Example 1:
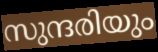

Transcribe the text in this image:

സുന്ദരിയും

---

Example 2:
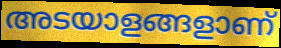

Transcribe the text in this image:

അടയാളങ്ങളാണ്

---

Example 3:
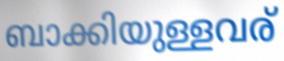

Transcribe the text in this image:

ബാക്കിയുള്ളവര്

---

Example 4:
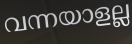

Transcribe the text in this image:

വന്നയാളല്ല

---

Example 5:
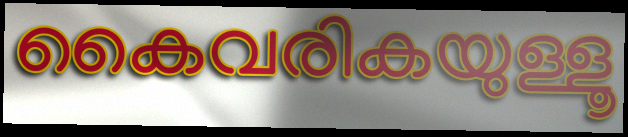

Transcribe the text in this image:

കൈവരികയുള്ളൂ